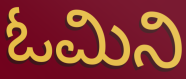
ಓಮಿನಿ